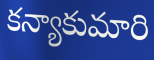
కన్యాకుమారి